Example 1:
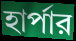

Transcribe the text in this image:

হার্পার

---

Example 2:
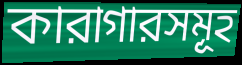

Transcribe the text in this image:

কারাগারসমূহ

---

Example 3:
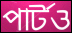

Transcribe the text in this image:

পার্টও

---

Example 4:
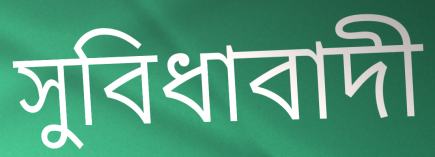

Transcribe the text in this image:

সুবিধাবাদী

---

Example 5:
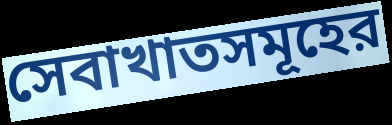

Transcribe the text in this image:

সেবাখাতসমূহের